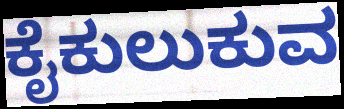
ಕೈಕುಲುಕುವ